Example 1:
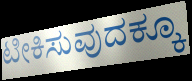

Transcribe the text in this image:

ಟೀಕಿಸುವುದಕ್ಕೂ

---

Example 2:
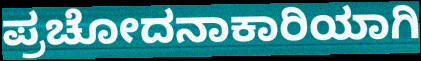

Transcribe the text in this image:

ಪ್ರಚೋದನಾಕಾರಿಯಾಗಿ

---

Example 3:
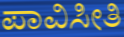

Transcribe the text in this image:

ಪಾವಿಸೀತಿ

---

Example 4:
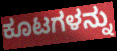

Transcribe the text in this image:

ಕೂಟಗಳನ್ನು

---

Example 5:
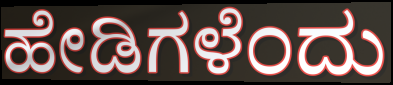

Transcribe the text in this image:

ಹೇಡಿಗಳೆಂದು